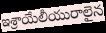
ఇశ్రాయేలీయురాలైన